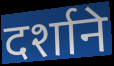
दर्शाने